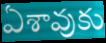
ఏశావుకు